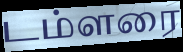
டம்ளரை